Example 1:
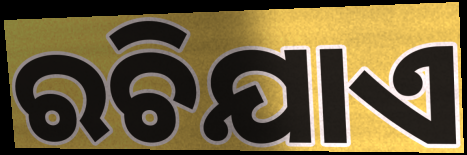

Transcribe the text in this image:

ରଚିଯାଏ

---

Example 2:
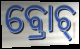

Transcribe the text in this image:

ବ୍ରୋଚ୍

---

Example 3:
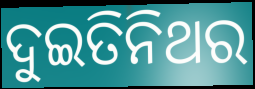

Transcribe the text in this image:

ଦୁଇତିନିଥର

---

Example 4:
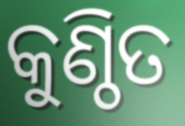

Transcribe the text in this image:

କୁଣ୍ଠିତ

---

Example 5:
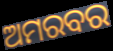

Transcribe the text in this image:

ଅମରବର